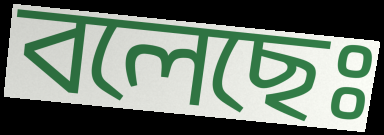
বলেছেঃ